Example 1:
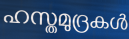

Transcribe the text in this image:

ഹസ്തമുദ്രകൾ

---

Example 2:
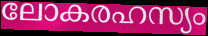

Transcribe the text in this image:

ലോകരഹസ്യം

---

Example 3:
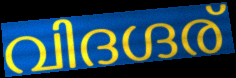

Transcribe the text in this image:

വിദഗ്ദര്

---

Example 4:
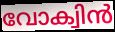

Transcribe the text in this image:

വോക്വിൻ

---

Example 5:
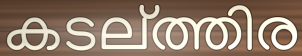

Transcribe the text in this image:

കടല്ത്തിര